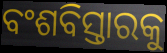
ବଂଶବିସ୍ତାରକୁ